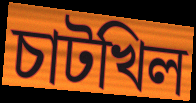
চাটখিল